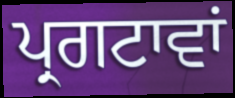
ਪ੍ਰਗਟਾਵਾਂ